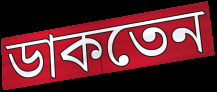
ডাকতেন